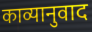
काव्यानुवाद